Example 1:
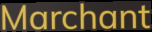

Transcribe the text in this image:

Marchant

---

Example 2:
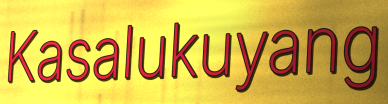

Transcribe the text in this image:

Kasalukuyang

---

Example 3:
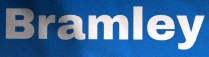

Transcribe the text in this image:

Bramley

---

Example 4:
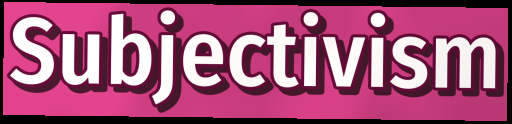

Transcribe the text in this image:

Subjectivism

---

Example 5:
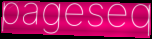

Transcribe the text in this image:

pageseq